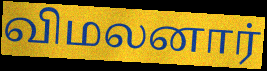
விமலனார்